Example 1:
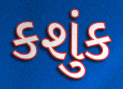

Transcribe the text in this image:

કશુંક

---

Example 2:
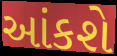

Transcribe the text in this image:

આંકશે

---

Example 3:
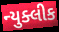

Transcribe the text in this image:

ન્યુક્લીક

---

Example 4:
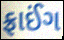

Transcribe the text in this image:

ફ્રાઈંગ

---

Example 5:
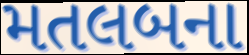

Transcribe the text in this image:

મતલબના